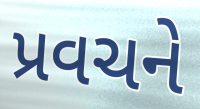
પ્રવચને